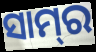
ସାମ୍‌ର